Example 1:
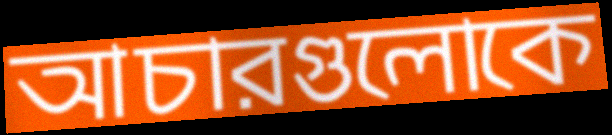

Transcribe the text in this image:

আচারগুলোকে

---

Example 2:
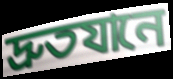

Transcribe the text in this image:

দ্রুতযানে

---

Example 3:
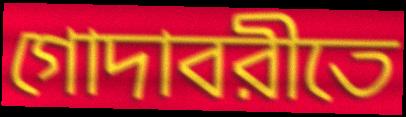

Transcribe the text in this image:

গোদাবরীতে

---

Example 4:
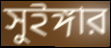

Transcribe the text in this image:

সুইঙ্গার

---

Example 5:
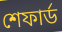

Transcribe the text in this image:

শেফার্ড